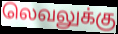
லெவலுக்கு